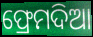
ଫ୍ରେମଦିଆ